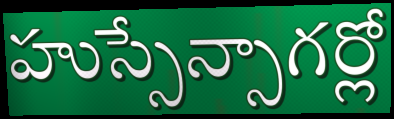
హుస్సేన్సాగర్లో